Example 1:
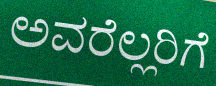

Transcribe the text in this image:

ಅವರೆಲ್ಲರಿಗೆ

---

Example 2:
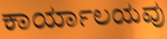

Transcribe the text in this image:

ಕಾರ್ಯಾಲಯವು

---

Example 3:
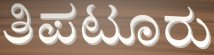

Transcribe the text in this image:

ತಿಪಟೂರು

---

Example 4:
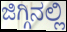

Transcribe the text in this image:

ಜಿಗ್ಗಿನಲ್ಲಿ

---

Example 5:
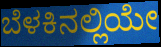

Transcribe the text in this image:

ಬೆಳಕಿನಲ್ಲಿಯೇ